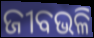
ଜୀବଭଳି